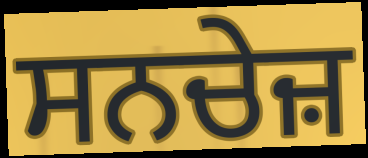
ਸਨਚੇਜ਼